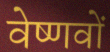
वेष्णवों